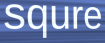
squre